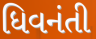
ધિવનંતી